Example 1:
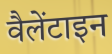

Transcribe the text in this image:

वैलेंटाइन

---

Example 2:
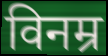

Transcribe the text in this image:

विनम्र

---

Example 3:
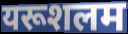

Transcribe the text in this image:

यरूशलम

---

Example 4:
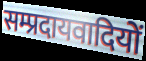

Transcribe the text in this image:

सम्प्रदायवादियों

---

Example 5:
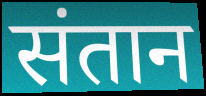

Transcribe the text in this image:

संतान